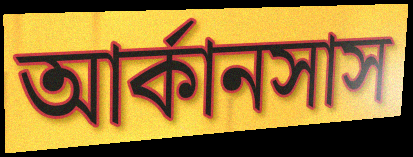
আর্কানসাস